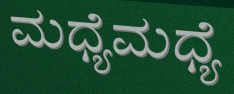
ಮಧ್ಯೆಮಧ್ಯೆ